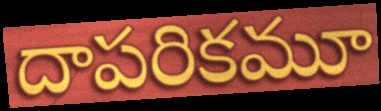
దాపరికమూ